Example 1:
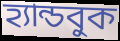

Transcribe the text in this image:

হ্যান্ডবুক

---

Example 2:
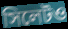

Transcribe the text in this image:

সিলেটও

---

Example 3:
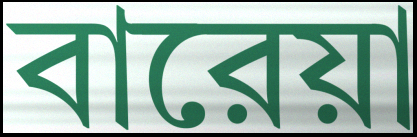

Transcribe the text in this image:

বারেয়া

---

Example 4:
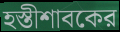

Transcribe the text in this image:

হস্তীশাবকের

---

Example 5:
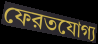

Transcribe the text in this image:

ফেরতযোগ্য